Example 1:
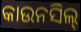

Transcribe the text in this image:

କାଉନସିଲ୍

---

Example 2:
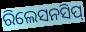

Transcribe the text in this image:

ରିଲେସନସିପ୍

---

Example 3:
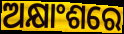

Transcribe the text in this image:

ଅକ୍ଷାଂଶରେ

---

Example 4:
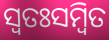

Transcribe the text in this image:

ସ୍ୱତଃସମ୍ବିତ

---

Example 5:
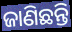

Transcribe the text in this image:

ଜାଣିଛନ୍ତି